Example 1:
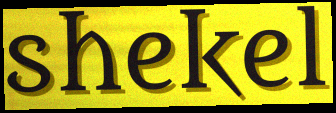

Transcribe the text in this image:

shekel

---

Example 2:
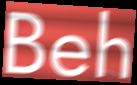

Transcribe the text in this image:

Beh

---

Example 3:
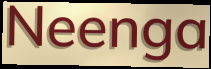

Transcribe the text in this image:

Neenga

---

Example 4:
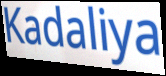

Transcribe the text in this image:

Kadaliya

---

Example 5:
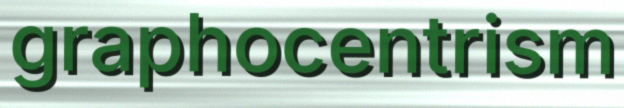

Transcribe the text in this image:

graphocentrism